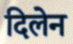
दिलेन